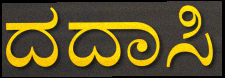
ದದಾಸಿ